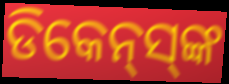
ଡିକେନ୍‌ସ୍‌ଙ୍କ